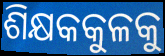
ଶିକ୍ଷକକୁଳକୁ